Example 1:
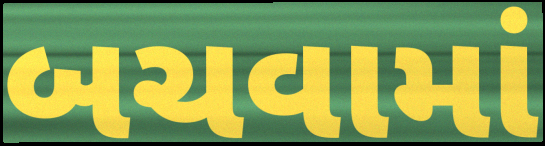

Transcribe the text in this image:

બચવામાં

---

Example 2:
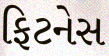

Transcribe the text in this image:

ફિટનેસ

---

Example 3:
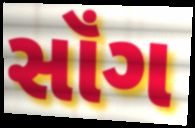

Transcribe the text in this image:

સૉંગ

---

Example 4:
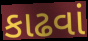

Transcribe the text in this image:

કાઢવાં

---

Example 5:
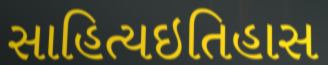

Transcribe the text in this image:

સાહિત્યઇતિહાસ